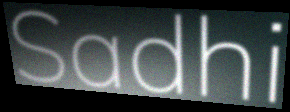
Sadhi